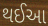
થઈઆ